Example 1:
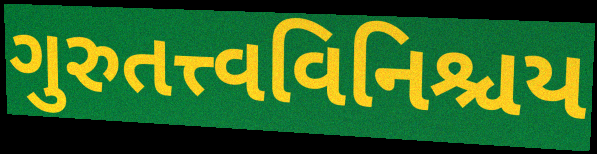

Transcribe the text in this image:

ગુરુતત્ત્વવિનિશ્ચય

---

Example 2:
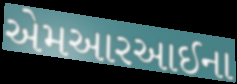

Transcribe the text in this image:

એમઆરઆઈના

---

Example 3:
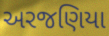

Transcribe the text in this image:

અરજણિયા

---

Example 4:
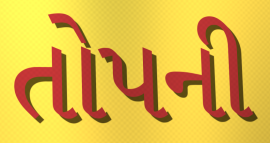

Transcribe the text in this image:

તોપની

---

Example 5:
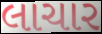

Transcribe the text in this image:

લાચાર